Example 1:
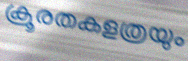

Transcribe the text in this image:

ക്രൂരതകളത്രയും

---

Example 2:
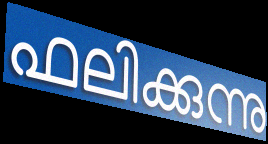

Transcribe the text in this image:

ഫലിക്കുന്നു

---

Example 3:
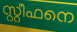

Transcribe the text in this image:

സ്റ്റീഫനെ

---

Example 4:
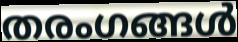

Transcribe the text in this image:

തരംഗങ്ങൾ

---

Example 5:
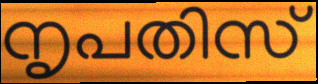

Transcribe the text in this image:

നൃപതിസ്